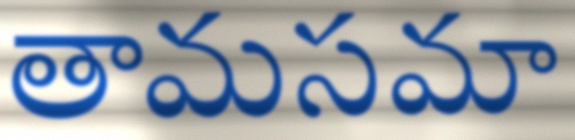
తామసమా